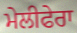
ਮੇਲੀਫੇਰਾ